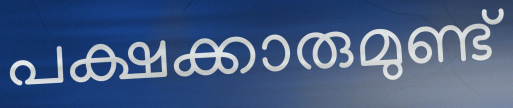
പക്ഷക്കാരുമുണ്ട്